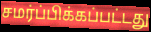
சமர்ப்பிக்கப்பட்டது